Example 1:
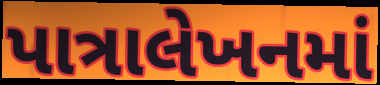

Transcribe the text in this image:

પાત્રાલેખનમાં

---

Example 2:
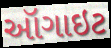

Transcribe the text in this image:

ઑગાઇટ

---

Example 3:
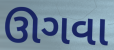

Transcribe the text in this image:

ઊગવા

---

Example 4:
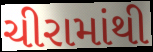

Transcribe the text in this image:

ચીરામાંથી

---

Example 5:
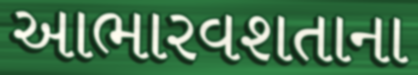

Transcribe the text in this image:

આભારવશતાના